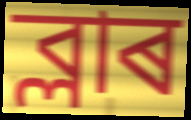
ব্লাৰ